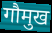
गौमुख